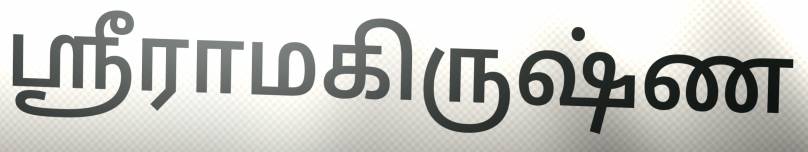
ஸ்ரீராமகிருஷ்ண